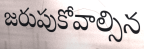
జరుపుకోవాల్సిన